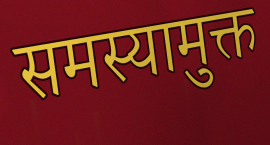
समस्यामुक्त